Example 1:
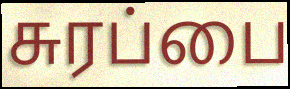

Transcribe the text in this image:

சுரப்பை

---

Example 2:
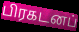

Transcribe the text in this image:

பிரகடனப்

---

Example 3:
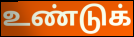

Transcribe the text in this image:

உண்டுக்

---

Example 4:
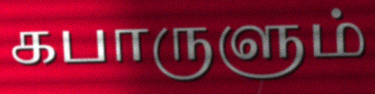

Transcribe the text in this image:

கபாருளும்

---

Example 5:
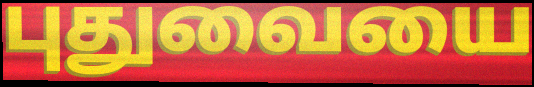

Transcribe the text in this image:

புதுவையை